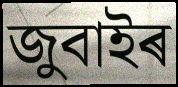
জুবাইৰ